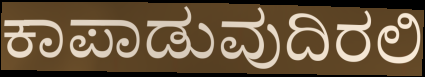
ಕಾಪಾಡುವುದಿರಲಿ